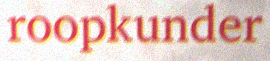
roopkunder